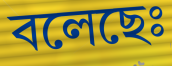
বলেছেঃ